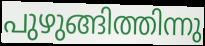
പുഴുങ്ങിത്തിന്നു